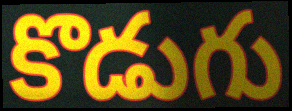
కొడుగు